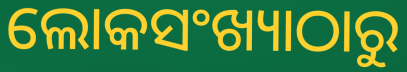
ଲୋକସଂଖ୍ୟାଠାରୁ